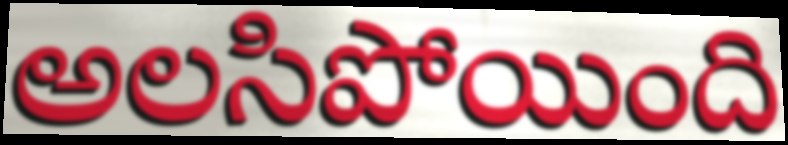
అలసిపోయింది